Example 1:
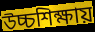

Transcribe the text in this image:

উচ্চশিক্ষায়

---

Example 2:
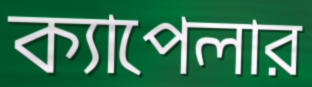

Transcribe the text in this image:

ক্যাপেলার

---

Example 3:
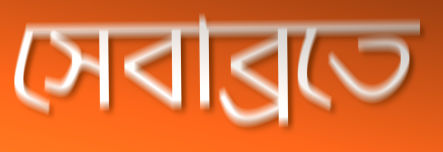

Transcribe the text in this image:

সেবাব্রতে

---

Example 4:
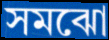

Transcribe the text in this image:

সমঝো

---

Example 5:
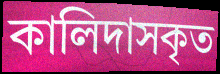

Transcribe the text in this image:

কালিদাসকৃত